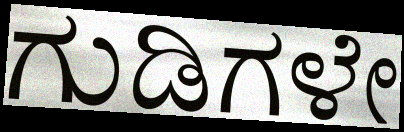
ಗುಡಿಗಳೇ